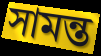
সামন্ত